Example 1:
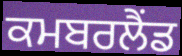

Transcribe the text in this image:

ਕਮਬਰਲੈਂਡ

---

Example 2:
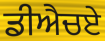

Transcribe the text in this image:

ਡੀਐਚਏ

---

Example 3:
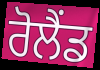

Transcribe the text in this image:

ਰੋਲੈਂਡ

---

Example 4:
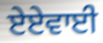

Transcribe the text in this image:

ਏਏਵਾਈ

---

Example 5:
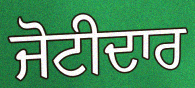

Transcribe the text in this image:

ਜੋਟੀਦਾਰ